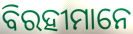
ବିରହୀମାନେ